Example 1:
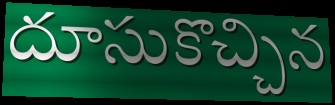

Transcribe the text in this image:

దూసుకొచ్చిన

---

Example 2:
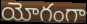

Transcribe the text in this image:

యోగంగా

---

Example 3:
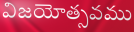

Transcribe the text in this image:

విజయోత్సవము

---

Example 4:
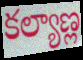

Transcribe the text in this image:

కల్యాణ్ల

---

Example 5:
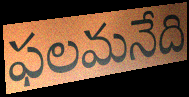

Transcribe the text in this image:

ఫలమనేది